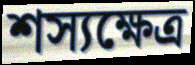
শস্যক্ষেত্র